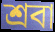
শ্রবা